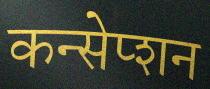
कन्सेप्शन